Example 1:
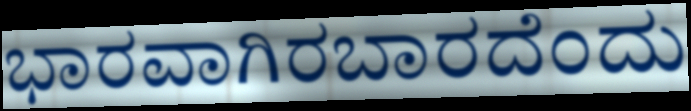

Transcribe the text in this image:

ಭಾರವಾಗಿರಬಾರದೆಂದು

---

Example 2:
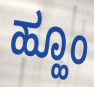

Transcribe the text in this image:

ಹ್ಹೂಂ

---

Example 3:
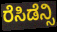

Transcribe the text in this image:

ರೆಸಿಡೆನ್ಸಿ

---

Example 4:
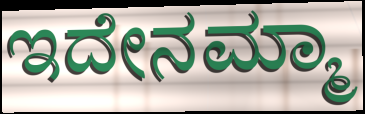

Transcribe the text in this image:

ಇದೇನಮ್ಮಾ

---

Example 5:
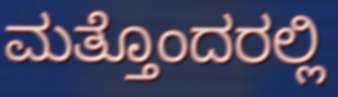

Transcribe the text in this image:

ಮತ್ತೊಂದರಲ್ಲಿ